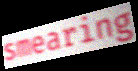
smearing